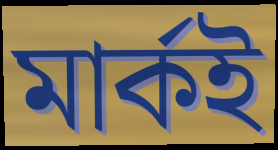
মার্কই